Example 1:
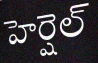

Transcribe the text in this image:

హెర్షెల్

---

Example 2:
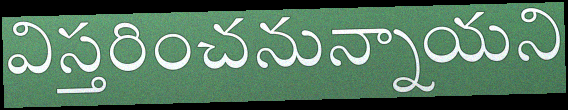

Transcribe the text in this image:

విస్తరించనున్నాయని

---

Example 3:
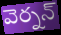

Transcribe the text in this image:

వెర్నన్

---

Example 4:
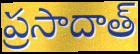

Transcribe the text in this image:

ప్రసాదాత్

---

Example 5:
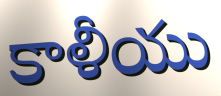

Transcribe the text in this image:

కాళీయు